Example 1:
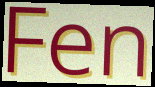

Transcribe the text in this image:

Fen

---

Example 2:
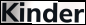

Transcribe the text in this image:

Kinder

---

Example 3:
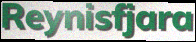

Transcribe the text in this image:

Reynisfjara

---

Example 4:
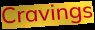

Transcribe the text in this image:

Cravings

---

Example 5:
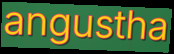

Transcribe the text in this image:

angustha